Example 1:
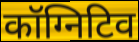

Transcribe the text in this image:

कॉग्निटिव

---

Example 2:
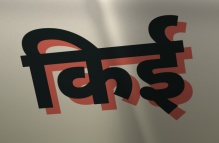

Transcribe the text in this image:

किई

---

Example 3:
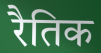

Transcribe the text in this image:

रैतिक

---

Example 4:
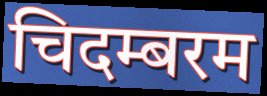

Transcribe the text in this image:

चिदम्बरम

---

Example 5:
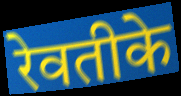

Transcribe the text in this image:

रेवतीके